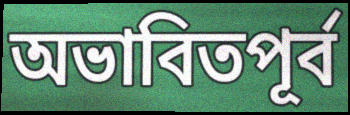
অভাবিতপূর্ব